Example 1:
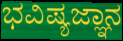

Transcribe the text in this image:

ಭವಿಷ್ಯಜ್ಞಾನ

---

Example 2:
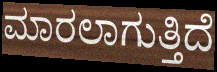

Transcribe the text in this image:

ಮಾರಲಾಗುತ್ತಿದೆ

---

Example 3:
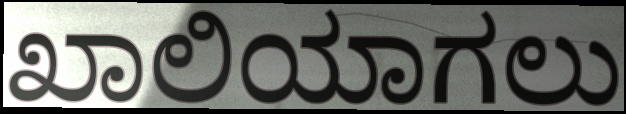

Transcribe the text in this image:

ಖಾಲಿಯಾಗಲು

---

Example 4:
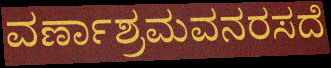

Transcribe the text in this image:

ವರ್ಣಾಶ್ರಮವನರಸದೆ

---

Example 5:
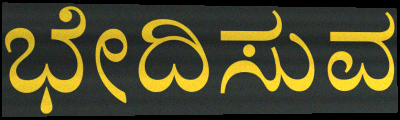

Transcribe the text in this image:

ಭೇದಿಸುವ